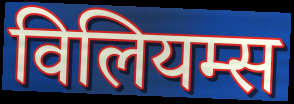
विलियम्स